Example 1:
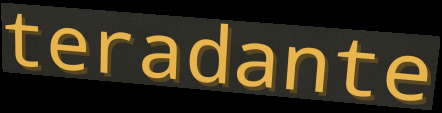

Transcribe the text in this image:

teradante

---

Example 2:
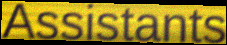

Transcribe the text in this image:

Assistants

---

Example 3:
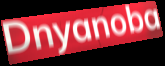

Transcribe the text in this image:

Dnyanoba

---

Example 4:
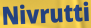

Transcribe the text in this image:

Nivrutti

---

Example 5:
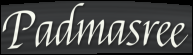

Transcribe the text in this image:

Padmasree